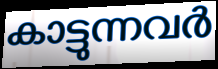
കാട്ടുന്നവർ